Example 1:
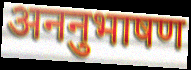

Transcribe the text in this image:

अननुभाषण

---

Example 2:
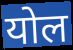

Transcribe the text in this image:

योल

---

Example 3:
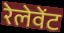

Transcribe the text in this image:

रेलेवेंट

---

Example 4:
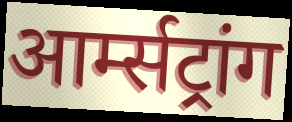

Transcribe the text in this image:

आर्म्सट्रांग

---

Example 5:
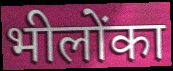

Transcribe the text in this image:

भीलोंका